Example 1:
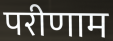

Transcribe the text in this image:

परीणाम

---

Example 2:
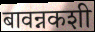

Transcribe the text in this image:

बावन्नकशी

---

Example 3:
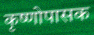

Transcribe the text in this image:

कृष्णोपासक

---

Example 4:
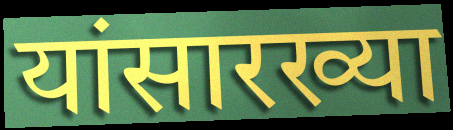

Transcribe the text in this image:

यांसारख्‍या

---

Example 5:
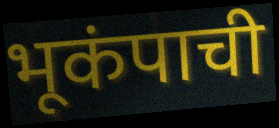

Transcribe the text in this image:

भूकंपाची